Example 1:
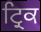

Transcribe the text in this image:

ਟ੍ਰਿਕ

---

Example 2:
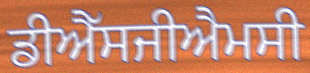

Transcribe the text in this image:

ਡੀਐੱਸਜੀਐਮਸੀ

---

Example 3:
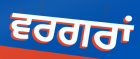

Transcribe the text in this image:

ਵਰਗਰਾਂ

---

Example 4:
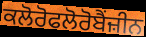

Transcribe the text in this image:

ਕਲੋਰੋਫਲੋਰੋਬੈਂਜ਼ੀਨ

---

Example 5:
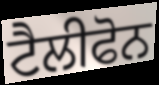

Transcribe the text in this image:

ਟੈਲੀਫੋਨ